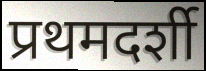
प्रथमदर्शी